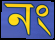
নং